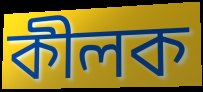
কীলক